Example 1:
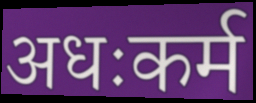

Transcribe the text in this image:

अधःकर्म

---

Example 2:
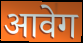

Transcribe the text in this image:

आवेग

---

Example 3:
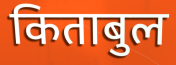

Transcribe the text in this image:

किताबुल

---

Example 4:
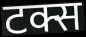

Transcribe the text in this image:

टक्स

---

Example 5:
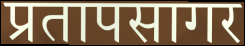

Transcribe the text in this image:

प्रतापसागर